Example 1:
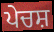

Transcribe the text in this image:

ਪੇਚਸ਼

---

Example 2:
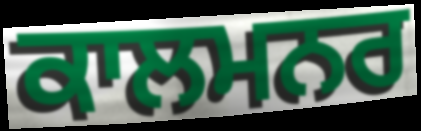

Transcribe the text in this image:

ਕਾਲਮਨਰ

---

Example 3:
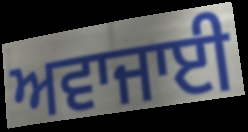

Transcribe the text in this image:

ਅਵਾਜਾਈ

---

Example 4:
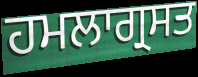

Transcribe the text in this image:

ਹਮਲਾਗ੍ਰਸਤ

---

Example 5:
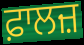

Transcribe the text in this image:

ਫ਼ਾਲਜ਼